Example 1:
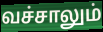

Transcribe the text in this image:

வச்சாலும்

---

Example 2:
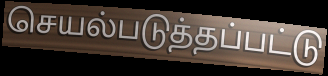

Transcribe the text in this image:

செயல்படுத்தப்பட்டு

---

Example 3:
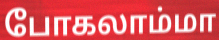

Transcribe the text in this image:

போகலாம்மா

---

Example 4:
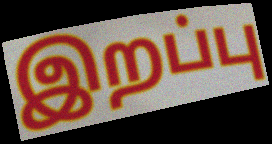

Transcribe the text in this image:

இறப்பு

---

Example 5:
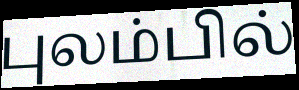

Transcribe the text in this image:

புலம்பில்